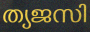
ത്യജസി